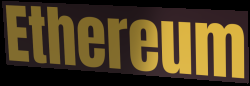
Ethereum